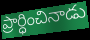
ప్రార్ధించినాడు